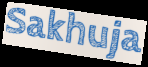
Sakhuja